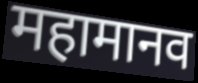
महामानव